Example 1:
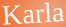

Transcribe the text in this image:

Karla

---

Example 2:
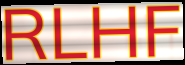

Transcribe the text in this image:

RLHF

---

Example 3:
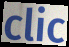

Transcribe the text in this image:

clic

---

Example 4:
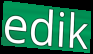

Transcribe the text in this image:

edik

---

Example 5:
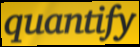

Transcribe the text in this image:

quantify